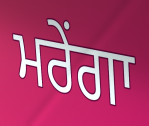
ਮਰੇਂਗਾ